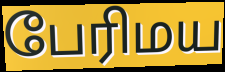
பேரிமய